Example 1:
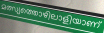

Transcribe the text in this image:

മത്സ്യത്തൊഴിലാളിയാണ്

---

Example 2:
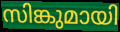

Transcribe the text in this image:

സിങ്കുമായി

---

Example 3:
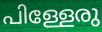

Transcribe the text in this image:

പിള്ളേരു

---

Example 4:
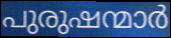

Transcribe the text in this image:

പുരുഷന്മാർ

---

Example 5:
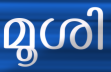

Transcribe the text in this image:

മൂശി